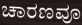
ಚಾರಣವೂ